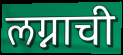
लग्नाची